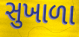
સુખાળા